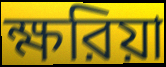
ক্ষরিয়া